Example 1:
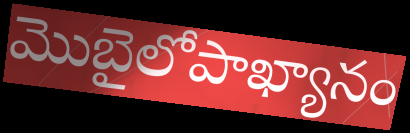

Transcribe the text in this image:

మొబైలోపాఖ్యానం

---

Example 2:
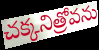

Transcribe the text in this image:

చక్కనిత్రోవను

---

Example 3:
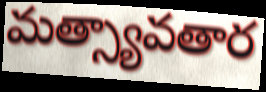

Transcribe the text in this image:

మత్స్యావతార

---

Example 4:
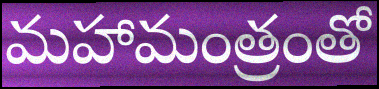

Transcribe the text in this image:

మహామంత్రంతో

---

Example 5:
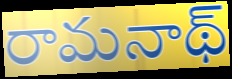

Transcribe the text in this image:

రామనాథ్